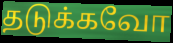
தடுக்கவோ